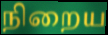
நிறைய